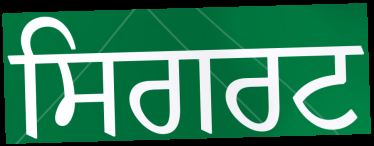
ਸਿਗਰਟ